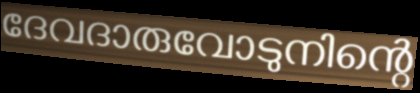
ദേവദാരുവോടുനിന്റെ